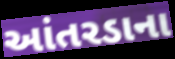
આંતરડાના